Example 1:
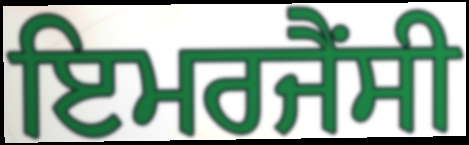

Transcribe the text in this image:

ਇਮਰਜੈਂਸੀ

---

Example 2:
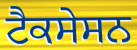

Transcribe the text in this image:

ਟੈਕਸੇਸਨ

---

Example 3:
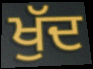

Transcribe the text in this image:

ਖੁੱਦ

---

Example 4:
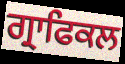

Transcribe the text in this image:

ਗ੍ਰਾਫਿਕਲ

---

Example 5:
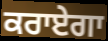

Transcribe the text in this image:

ਕਰਾਏਗਾ